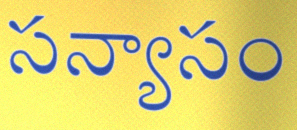
సన్యాసం